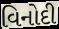
વિનોદી